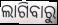
ଲାଗିବାରୁ